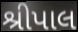
શ્રીપાલ